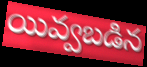
యివ్వబడిన